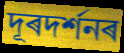
দূৰদৰ্শনৰ